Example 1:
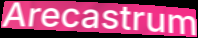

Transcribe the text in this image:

Arecastrum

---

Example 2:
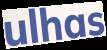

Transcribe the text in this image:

ulhas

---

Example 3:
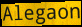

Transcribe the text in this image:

Alegaon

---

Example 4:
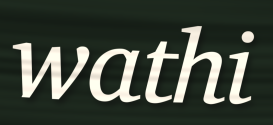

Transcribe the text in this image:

wathi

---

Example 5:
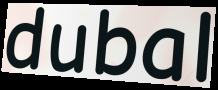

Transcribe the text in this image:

dubal